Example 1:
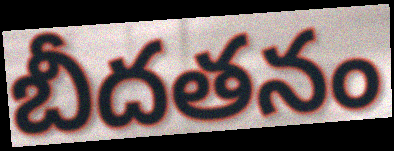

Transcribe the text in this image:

బీదతనం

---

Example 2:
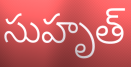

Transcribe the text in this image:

సుహృత్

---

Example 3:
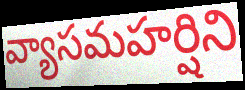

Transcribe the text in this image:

వ్యాసమహర్షిని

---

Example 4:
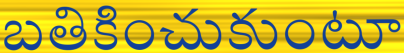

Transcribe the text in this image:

బతికించుకుంటూ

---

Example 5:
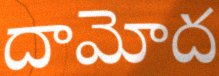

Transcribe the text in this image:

దామోద